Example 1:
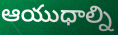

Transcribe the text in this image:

ఆయుధాల్ని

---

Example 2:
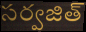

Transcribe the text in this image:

సర్వజిత్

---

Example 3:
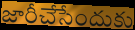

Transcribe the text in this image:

జారీచేసేందుకు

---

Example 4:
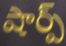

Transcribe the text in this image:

షార్ప్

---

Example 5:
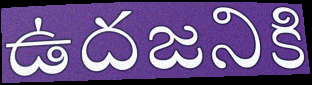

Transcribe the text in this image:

ఉదజనికి